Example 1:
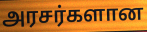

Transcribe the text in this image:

அரசர்களான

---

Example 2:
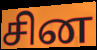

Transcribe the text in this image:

சின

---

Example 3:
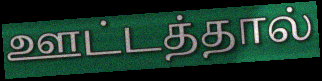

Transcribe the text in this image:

ஊட்டத்தால்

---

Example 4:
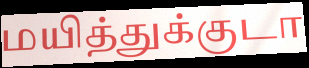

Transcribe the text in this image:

மயித்துக்குடா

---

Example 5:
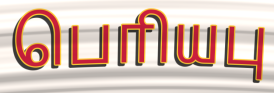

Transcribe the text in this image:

பெரியபு